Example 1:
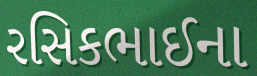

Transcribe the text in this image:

રસિકભાઈના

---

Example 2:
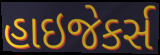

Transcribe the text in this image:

હાઇજેકર્સ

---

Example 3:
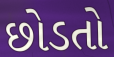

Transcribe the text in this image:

છોડતો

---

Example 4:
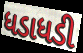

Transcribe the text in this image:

ધડાધડી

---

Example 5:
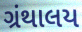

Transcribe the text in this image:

ગ્રંથાલય